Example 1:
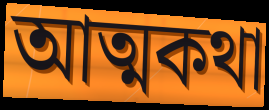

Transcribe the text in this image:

আত্মকথা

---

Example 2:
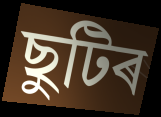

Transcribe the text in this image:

ছুটিৰ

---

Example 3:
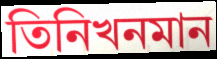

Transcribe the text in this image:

তিনিখনমান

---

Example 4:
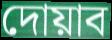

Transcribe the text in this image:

দোয়াব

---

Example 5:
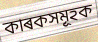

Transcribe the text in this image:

কাৰকসমূহক